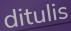
ditulis